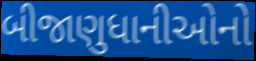
બીજાણુધાનીઓનો